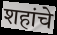
शहांचे